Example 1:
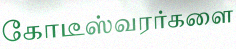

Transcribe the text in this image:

கோடீஸ்வரர்களை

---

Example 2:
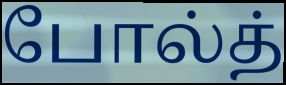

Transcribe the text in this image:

போல்த்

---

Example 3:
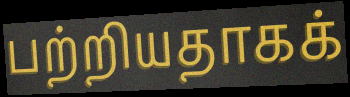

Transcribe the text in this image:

பற்றியதாகக்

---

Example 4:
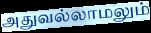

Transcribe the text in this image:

அதுவல்லாமலும்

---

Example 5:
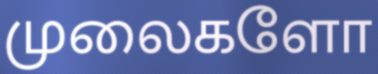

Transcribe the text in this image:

முலைகளோ